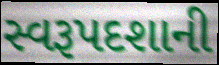
સ્વરૂપદશાની